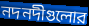
নদনদীগুলোর